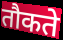
तौकते